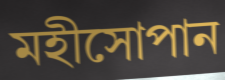
মহীসোপান